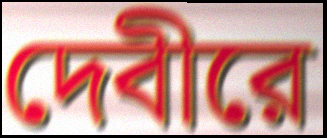
দেবীরে